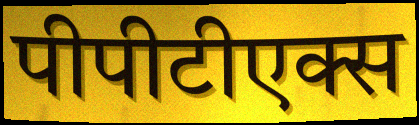
पीपीटीएक्स